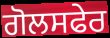
ਗੋਲਸਫੇਰ